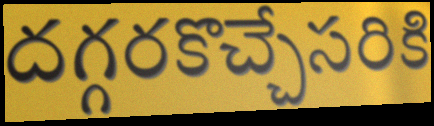
దగ్గరకొచ్చేసరికి